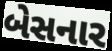
બેસનાર